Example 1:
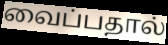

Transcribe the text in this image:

வைப்பதால்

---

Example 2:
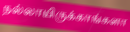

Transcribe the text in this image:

நல்லாயிருக்காங்களா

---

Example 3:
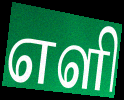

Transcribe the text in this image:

எளி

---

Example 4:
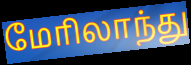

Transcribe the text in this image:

மேரிலாந்து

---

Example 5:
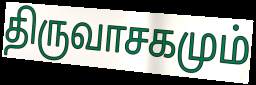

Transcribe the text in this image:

திருவாசகமும்